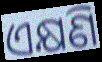
ଏକ୍ଷଣି